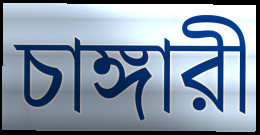
চাঙ্গারী